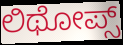
ಲಿಥೋಪ್ಸ್